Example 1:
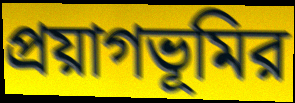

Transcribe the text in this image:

প্রয়াগভূমির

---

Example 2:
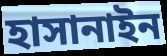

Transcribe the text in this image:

হাসানাইন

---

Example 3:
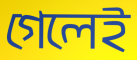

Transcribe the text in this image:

গেলেই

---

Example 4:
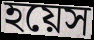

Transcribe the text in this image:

হয়েস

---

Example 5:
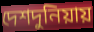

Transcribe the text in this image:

দেশদুনিয়ায়